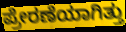
ಪ್ರೇರಣೆಯಾಗಿತ್ತು